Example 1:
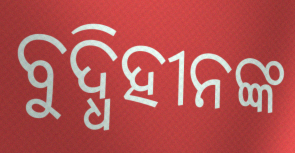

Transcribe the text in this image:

ବୁଦ୍ଧିହୀନଙ୍କ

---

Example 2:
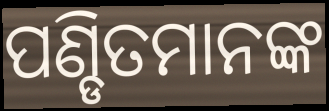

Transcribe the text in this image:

ପଣ୍ଡିତମାନଙ୍କ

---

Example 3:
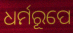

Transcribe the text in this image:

ଧର୍ମରୂପେ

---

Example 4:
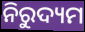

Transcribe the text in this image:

ନିରୁଦ୍ୟମ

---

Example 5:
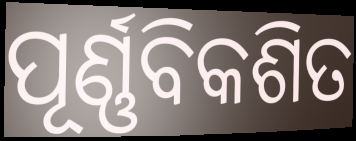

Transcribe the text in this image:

ପୂର୍ଣ୍ଣବିକଶିତ